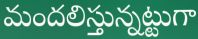
మందలిస్తున్నట్టుగా